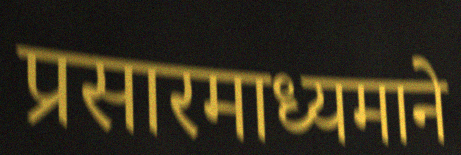
प्रसारमाध्यमाने